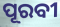
ପୂରବୀ